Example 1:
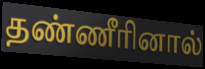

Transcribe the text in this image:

தண்ணீரினால்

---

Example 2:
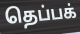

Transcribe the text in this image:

தெப்பக்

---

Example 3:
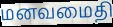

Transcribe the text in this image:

மனவமைதி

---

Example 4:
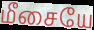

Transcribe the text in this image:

மீசையே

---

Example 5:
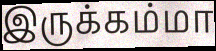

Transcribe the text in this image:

இருக்கம்மா